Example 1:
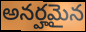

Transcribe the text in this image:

అనర్హమైన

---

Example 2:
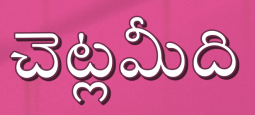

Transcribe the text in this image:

చెట్లమీది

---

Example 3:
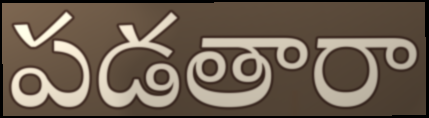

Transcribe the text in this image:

పడతారా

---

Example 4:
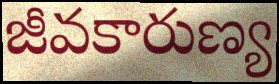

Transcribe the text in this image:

జీవకారుణ్య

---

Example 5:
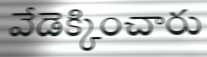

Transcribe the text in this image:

వేడెక్కించారు